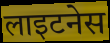
लाइटनेस